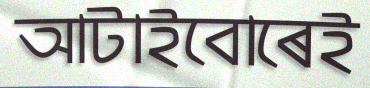
আটাইবোৰেই